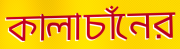
কালাচাঁনের